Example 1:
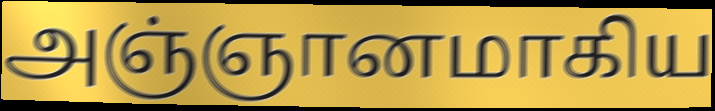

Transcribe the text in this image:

அஞ்ஞானமாகிய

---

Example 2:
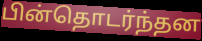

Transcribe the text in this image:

பின்தொடர்ந்தன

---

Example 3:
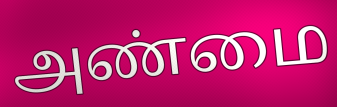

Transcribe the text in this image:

அண்மை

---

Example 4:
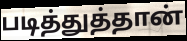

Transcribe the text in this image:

படித்துத்தான்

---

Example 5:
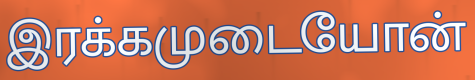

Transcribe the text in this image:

இரக்கமுடையோன்